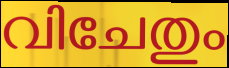
വിചേതും